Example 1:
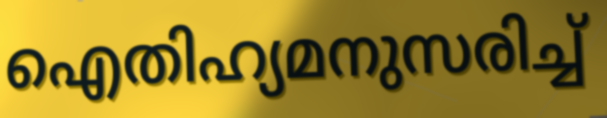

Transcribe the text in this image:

ഐതിഹ്യമനുസരിച്ച്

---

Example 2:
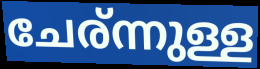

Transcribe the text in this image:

ചേര്ന്നുള്ള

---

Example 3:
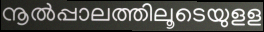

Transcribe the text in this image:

നൂൽപ്പാലത്തിലൂടെയുളള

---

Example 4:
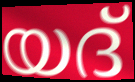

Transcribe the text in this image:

യദ്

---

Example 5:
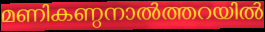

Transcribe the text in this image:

മണികണ്ഠനാൽത്തറയിൽ